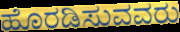
ಹೊರಡಿಸುವವರು